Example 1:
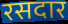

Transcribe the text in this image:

रसदार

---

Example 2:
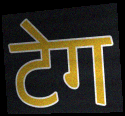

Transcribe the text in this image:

टेग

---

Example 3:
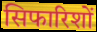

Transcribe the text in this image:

सिफारिशों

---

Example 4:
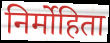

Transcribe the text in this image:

निर्मोहिता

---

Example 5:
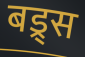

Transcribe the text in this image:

बड्र्स